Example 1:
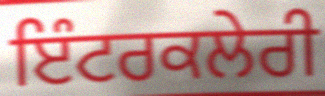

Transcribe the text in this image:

ਇੰਟਰਕਲੇਰੀ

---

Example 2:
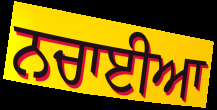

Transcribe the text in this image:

ਨਚਾਈਆ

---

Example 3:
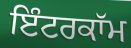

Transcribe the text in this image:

ਇੰਟਰਕਾੱਮ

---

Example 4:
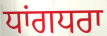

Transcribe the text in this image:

ਧਾਂਗਧਰਾ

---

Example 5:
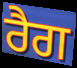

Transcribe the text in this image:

ਰੈਗ